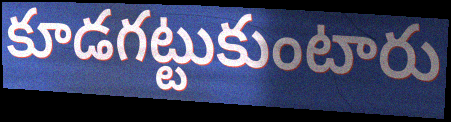
కూడగట్టుకుంటారు